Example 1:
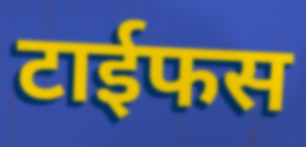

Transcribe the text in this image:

टाईफस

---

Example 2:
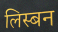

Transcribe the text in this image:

लिस्बन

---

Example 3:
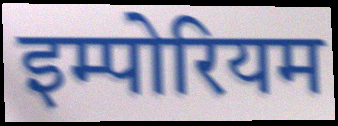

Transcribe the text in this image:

इम्पोरियम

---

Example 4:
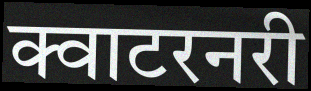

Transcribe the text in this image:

क्वाटरनरी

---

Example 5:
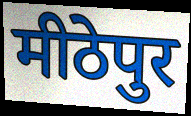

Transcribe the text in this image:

मीठेपुर